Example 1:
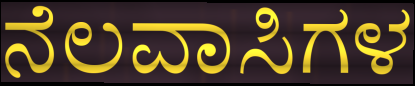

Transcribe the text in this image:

ನೆಲವಾಸಿಗಳ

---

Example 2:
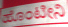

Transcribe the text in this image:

ಹೊಂಟೀನಿ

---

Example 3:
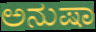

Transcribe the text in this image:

ಅನುಷಾ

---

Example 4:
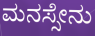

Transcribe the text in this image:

ಮನಸ್ಸೇನು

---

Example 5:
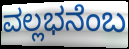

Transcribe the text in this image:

ವಲ್ಲಭನೆಂಬ